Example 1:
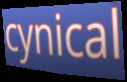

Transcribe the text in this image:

cynical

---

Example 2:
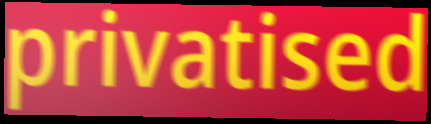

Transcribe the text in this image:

privatised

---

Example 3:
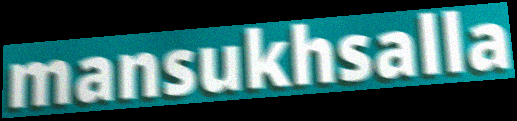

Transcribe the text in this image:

mansukhsalla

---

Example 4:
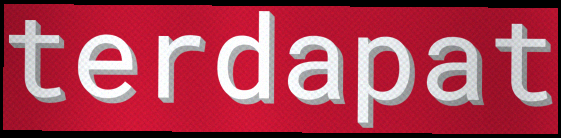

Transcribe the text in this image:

terdapat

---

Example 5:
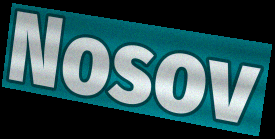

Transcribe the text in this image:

Nosov